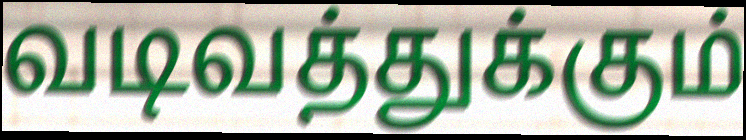
வடிவத்துக்கும்